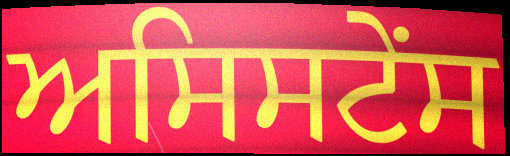
ਅਸਿਸਟੇਂਸ